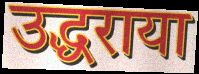
उद्धराया